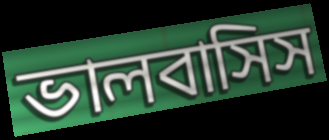
ভালবাসিস